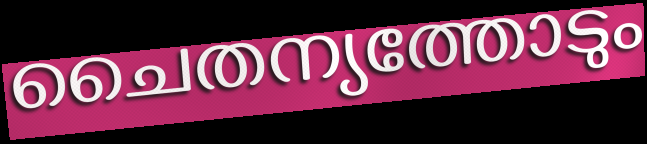
ചൈതന്യത്തോടും